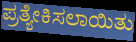
ಪ್ರತ್ಯೇಕಿಸಲಾಯಿತು